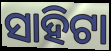
ସାହିଟା